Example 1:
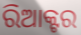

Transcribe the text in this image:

ରିଆକ୍ଟର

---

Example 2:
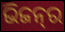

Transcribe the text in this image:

ଭିଜନ୍‌ର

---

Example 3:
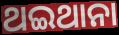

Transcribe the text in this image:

ଥଇଥାନା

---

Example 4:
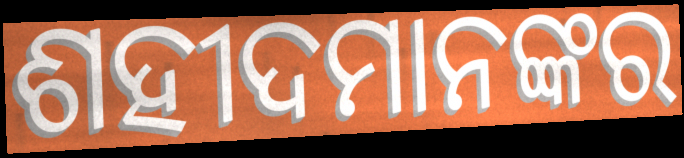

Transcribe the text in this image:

ଶହୀଦମାନଙ୍କର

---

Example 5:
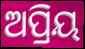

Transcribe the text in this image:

ଅପ୍ରିୟ